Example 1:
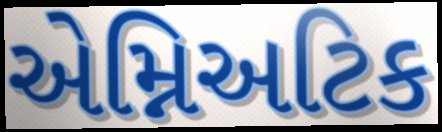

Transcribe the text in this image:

એમ્નિઅટિક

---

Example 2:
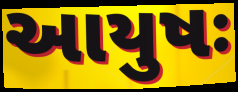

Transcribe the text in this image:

આયુષઃ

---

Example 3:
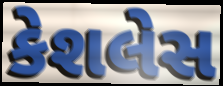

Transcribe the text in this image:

કેશલેસ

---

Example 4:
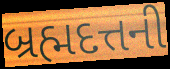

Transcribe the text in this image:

બ્રહ્મદત્તની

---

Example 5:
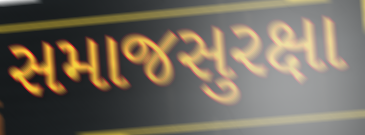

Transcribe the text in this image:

સમાજસુરક્ષા